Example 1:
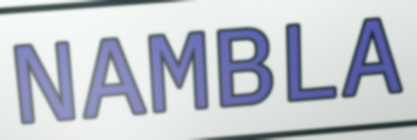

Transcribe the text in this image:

NAMBLA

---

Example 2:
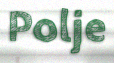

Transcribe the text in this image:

Polje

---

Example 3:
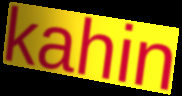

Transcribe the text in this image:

kahin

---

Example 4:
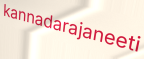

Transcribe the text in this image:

kannadarajaneeti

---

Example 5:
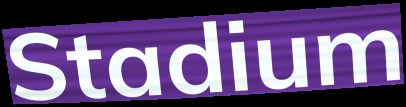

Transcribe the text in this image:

Stadium